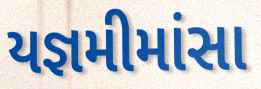
યજ્ઞમીમાંસા